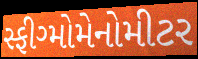
સ્ફીગ્મોમેનોમીટર